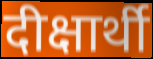
दीक्षार्थी